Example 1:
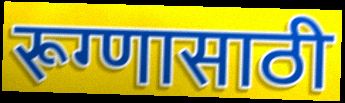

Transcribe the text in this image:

रूग्णासाठी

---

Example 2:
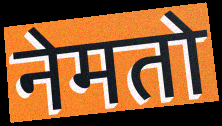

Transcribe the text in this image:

नेमतो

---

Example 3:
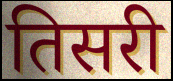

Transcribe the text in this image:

तिसरी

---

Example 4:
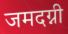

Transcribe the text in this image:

जमदग्नी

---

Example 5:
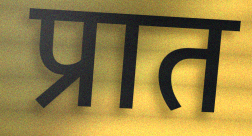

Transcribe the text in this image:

प्रात